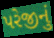
પરેજીનું